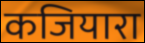
कजियारा